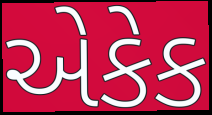
એકેક